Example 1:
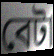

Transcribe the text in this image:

বেটা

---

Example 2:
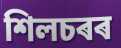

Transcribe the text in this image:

শিলচৰৰ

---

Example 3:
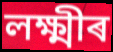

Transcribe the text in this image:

লক্ষ্মীৰ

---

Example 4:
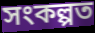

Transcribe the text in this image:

সংকল্পত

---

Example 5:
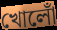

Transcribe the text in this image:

খোলোঁ